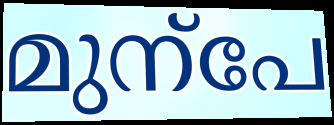
മുന്പേ